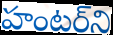
హంటర్‌ని